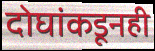
दोघांकडूनही